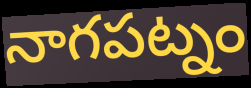
నాగపట్నం